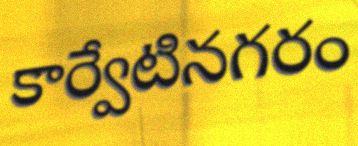
కార్వేటినగరం